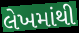
લેખમાંથી